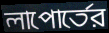
লাপোর্তের